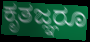
ಕೃತಜ್ಞರೂ